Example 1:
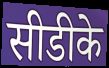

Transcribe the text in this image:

सीडीके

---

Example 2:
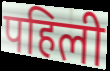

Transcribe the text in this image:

पहिली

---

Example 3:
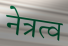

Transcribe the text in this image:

नेत्रत्व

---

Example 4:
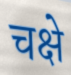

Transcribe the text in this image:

चक्षे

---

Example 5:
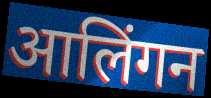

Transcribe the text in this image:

आलिंगन